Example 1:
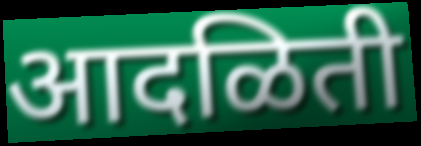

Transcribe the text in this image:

आदळिती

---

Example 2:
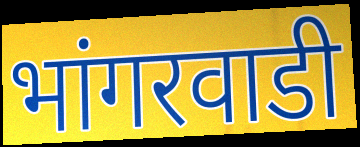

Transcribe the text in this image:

भांगरवाडी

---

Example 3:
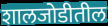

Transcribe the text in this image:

शालजोडीतील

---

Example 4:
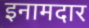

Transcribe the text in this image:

इनामदार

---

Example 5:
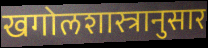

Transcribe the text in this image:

खगोलशास्त्रानुसार